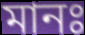
মানঃ